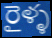
రైళ్ళ